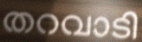
തറവാടി